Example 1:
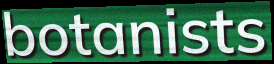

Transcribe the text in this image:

botanists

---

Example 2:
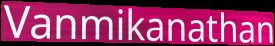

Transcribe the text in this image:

Vanmikanathan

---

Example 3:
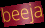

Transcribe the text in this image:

beeja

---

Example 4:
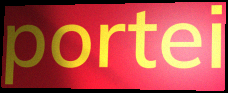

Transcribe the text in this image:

portei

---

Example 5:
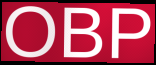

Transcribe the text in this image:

OBP